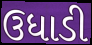
ઉધાડી